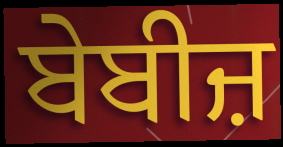
ਬੇਬੀਜ਼